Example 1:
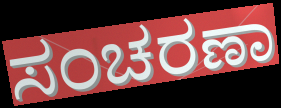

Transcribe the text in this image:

ಸಂಚರಣಾ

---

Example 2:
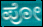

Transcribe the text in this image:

ಪೋ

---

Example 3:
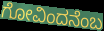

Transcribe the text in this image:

ಗೋವಿಂದನೆಂಬ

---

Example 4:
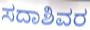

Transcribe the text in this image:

ಸದಾಶಿವರ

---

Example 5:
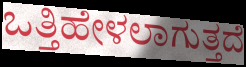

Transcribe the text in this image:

ಒತ್ತಿಹೇಳಲಾಗುತ್ತದೆ